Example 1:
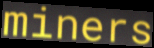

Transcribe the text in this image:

miners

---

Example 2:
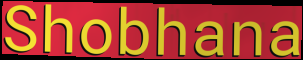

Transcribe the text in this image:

Shobhana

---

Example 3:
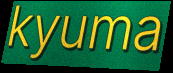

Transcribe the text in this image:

kyuma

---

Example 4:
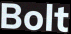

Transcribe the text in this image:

Bolt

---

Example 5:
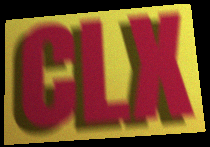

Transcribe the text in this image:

CLX